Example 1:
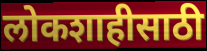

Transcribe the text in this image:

लोकशाहीसाठी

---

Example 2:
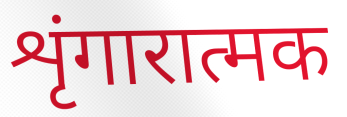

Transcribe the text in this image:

शृंगारात्मक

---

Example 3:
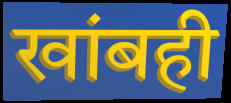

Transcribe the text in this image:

खांबही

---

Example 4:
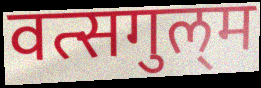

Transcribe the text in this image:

वत्सगुल्म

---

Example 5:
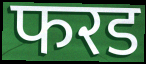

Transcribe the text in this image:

फरड